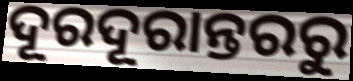
ଦୂରଦୂରାନ୍ତରରୁ